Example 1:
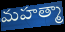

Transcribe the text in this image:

మహత్మా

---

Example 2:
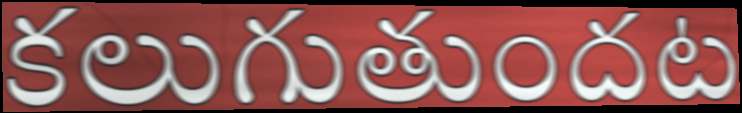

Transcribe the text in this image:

కలుగుతుందట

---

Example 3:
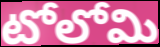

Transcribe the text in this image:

టోలోమి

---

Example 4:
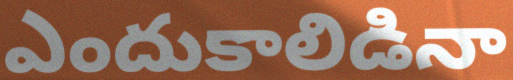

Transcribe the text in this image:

ఎందుకాలిడినా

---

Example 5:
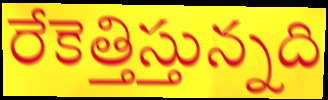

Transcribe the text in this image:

రేకెత్తిస్తున్నది